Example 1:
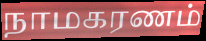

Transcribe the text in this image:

நாமகரணம்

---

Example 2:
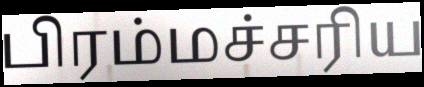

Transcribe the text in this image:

பிரம்மச்சரிய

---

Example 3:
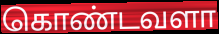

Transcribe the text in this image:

கொண்டவளா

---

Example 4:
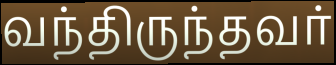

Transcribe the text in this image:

வந்திருந்தவர்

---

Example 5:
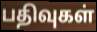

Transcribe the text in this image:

பதிவுகள்